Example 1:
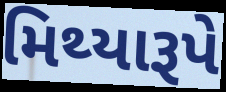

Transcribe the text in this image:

મિથ્યારૂપે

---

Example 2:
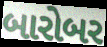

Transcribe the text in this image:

બારોબર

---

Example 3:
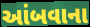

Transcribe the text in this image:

આંબવાના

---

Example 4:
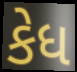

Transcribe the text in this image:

કેધ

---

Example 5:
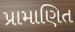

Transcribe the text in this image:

પ્રામાણિત